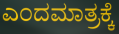
ಎಂದಮಾತ್ರಕ್ಕೆ